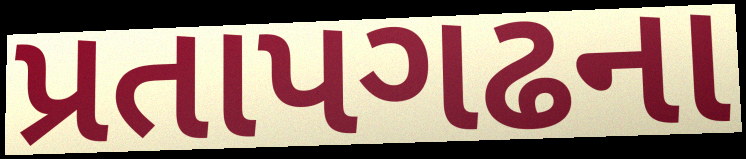
પ્રતાપગઢના